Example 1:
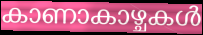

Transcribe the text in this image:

കാണാകാഴ്ചകൾ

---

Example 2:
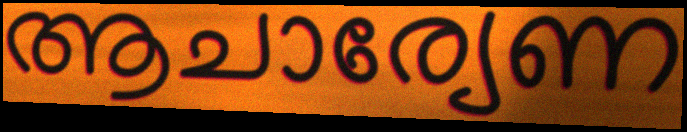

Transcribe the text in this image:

ആചാര്യേണ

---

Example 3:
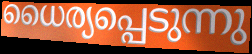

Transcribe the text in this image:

ധൈര്യപ്പെടുന്നു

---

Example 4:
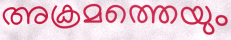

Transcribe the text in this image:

അക്രമത്തെയും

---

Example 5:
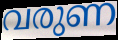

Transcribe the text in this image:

വരുണ